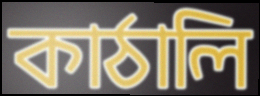
কাঠালি